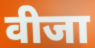
वीजा